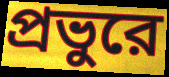
প্রভুরে